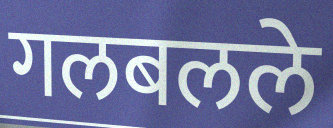
गलबलले